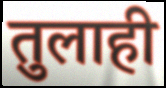
तुलाही